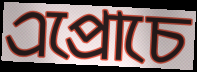
এপ্রোচে